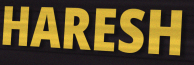
HARESH